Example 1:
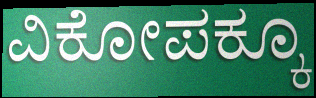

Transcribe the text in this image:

ವಿಕೋಪಕ್ಕೂ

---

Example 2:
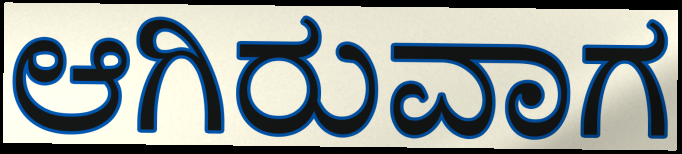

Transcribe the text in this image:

ಆಗಿರುವಾಗ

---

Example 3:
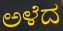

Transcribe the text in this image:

ಅಳೆದ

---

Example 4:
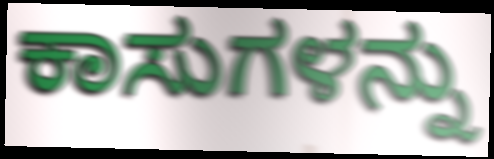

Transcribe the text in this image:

ಕಾಸುಗಳನ್ನು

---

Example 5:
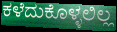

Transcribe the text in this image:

ಕಳೆದುಕೊಳ್ಳಲಿಲ್ಲ